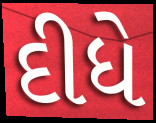
દીધે